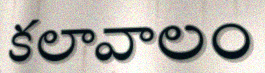
కలావాలం